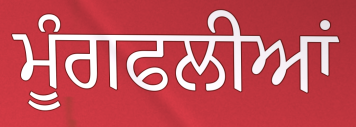
ਮੂੰਗਫਲੀਆਂ